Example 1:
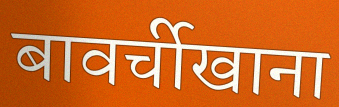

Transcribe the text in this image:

बावर्चीखाना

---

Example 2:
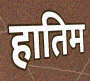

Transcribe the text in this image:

हातिम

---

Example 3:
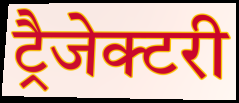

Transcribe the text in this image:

ट्रैजेक्‍टरी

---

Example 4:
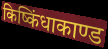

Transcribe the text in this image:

किष्किंधाकाण्ड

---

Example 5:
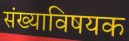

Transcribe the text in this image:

संख्याविषयक